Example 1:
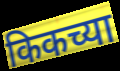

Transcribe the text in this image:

किकच्या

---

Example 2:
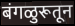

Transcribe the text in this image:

बंगळुरूतून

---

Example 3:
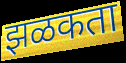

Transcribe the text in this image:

झळकता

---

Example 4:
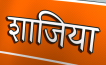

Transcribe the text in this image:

शाजिया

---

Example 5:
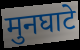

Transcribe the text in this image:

मुनघाटे